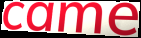
came